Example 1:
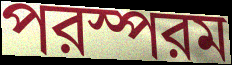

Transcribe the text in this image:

পরস্পরম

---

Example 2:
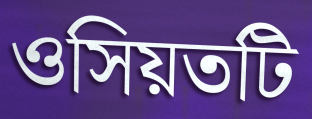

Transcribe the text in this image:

ওসিয়তটি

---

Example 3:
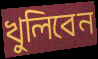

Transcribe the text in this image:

খুলিবেন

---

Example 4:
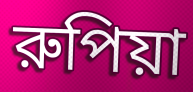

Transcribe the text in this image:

রুপিয়া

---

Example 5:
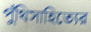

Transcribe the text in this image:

পুঁথিসাহিত্যের